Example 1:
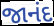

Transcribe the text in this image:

જાનંદ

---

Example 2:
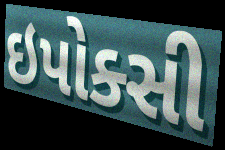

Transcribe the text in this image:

ઇપોક્સી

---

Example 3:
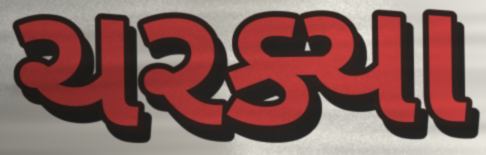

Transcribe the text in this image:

ચરક્યા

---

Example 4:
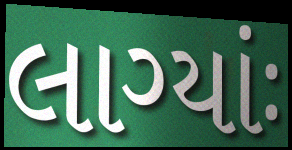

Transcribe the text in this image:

લાગ્યાંઃ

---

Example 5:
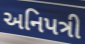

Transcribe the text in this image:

અનિપત્રી